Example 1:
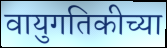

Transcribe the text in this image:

वायुगतिकीच्या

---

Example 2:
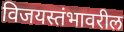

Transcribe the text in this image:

विजयस्तंभावरील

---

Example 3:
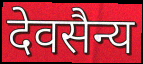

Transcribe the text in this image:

देवसैन्य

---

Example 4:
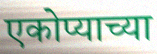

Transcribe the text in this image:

एकोप्याच्या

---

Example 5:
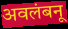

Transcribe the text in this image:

अवलंबनू